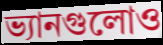
ভ্যানগুলোও